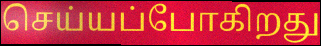
செய்யப்போகிறது